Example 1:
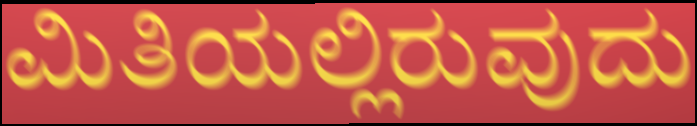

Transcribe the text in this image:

ಮಿತಿಯಲ್ಲಿರುವುದು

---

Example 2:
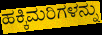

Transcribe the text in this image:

ಹಕ್ಕಿಮರಿಗಳನ್ನು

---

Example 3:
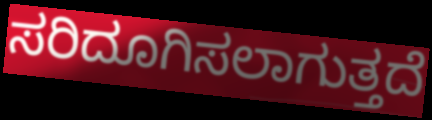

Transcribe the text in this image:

ಸರಿದೂಗಿಸಲಾಗುತ್ತದೆ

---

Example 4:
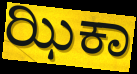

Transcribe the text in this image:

ಝಿಕಾ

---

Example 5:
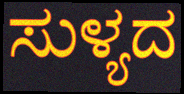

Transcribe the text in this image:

ಸುಳ್ಯದ